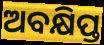
ଅବକ୍ଷିପ୍ତ